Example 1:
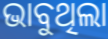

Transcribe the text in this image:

ଭାବୁଥିଲା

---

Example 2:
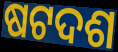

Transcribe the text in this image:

ଷଟଦଶ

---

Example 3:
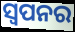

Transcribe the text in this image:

ସ୍ଵପନର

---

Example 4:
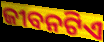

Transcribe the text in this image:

ଜୀବନଟିଏ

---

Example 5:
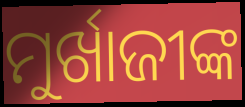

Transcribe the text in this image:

ମୁର୍ଖାଜୀଙ୍କ